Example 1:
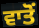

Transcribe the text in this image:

ਵਾਤੋਂ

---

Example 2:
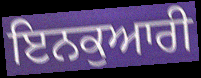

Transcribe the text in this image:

ਇਨਕੁਆਰੀ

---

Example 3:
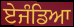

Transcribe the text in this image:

ਏਜੰਡਿਆ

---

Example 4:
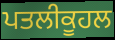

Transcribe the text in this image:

ਪਤਲੀਕੂਹਲ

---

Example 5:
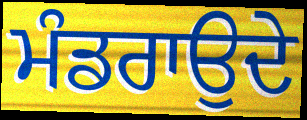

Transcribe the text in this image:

ਮੰਡਰਾਉਦੇ